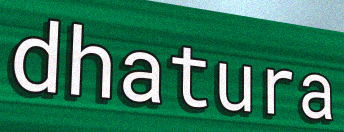
dhatura